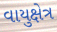
વાયુક્ષેત્ર